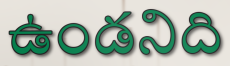
ఉండనిది